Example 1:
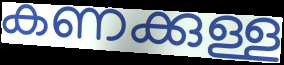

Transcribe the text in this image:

കണക്കുള്ള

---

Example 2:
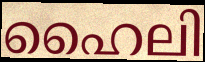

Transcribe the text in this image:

ഹൈലി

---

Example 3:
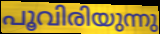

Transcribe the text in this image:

പൂവിരിയുന്നു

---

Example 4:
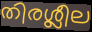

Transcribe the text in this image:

തിരശ്ലീല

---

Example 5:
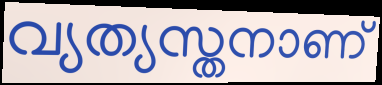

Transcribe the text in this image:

വ്യത്യസ്തനാണ്